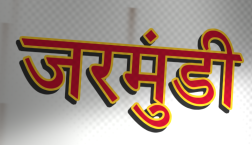
जरमुंडी